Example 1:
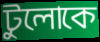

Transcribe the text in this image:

টুলোকে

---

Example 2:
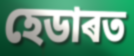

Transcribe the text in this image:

হেডাৰত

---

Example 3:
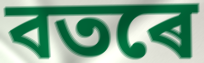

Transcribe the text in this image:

বতৰে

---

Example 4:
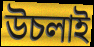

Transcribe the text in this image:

উচলাই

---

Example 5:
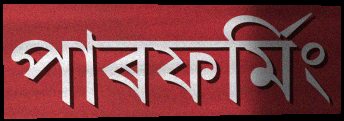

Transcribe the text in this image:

পাৰফৰ্মিং